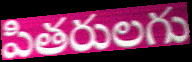
పితరులగు